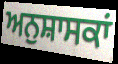
ਅਨੁਸ਼ਾਸਕਾਂ